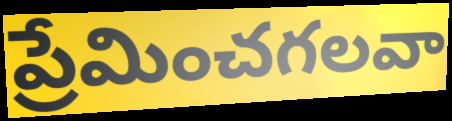
ప్రేమించగలవా